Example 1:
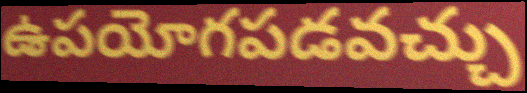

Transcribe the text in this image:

ఉపయోగపడవచ్చు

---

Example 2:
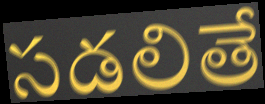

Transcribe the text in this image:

సడలితే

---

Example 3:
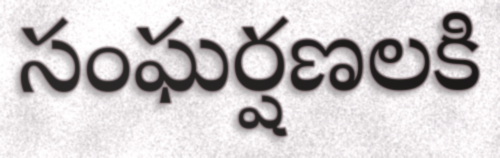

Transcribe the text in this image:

సంఘర్షణలకి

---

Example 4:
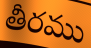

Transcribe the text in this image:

తీరము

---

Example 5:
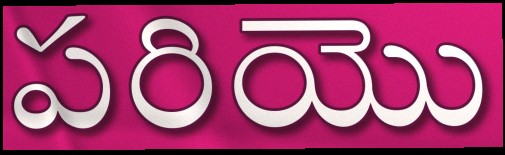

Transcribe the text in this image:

పరియొ